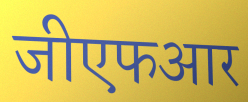
जीएफआर